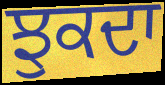
ਝੁਕਦਾ